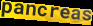
pancreas